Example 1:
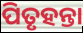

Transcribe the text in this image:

ପିତୃହନ୍ତା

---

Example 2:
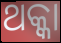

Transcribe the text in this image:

ଥକ୍କା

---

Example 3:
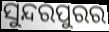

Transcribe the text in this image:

ସୁନ୍ଦରପୁରର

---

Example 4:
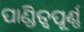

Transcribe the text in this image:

ପାଣ୍ଡିତ୍ୱପୂର୍ଣ୍ଣ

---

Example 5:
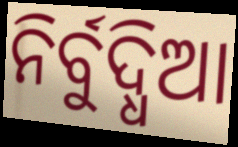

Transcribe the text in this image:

ନିର୍ବୁଦ୍ଧିଆ